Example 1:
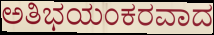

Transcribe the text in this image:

ಅತಿಭಯಂಕರವಾದ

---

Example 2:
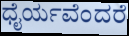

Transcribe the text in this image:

ಧೈರ್ಯವೆಂದರೆ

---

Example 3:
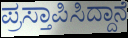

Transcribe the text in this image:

ಪ್ರಸ್ತಾಪಿಸಿದ್ದಾನೆ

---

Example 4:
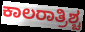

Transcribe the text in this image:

ಕಾಲರಾತ್ರಿಶ್ಚ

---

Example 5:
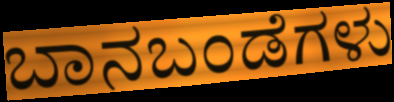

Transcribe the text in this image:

ಬಾನಬಂಡೆಗಳು